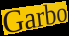
Garbo